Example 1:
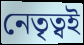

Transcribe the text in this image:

নেতৃত্বই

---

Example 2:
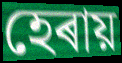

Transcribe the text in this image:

হেৰায়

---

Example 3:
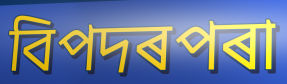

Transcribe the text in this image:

বিপদৰপৰা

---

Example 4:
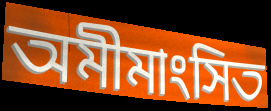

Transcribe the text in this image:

অমীমাংসিত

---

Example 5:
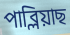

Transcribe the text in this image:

পাব্লিয়াছ